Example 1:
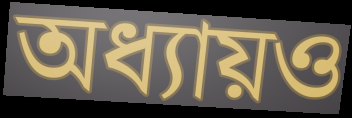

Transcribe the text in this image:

অধ্যায়ও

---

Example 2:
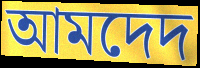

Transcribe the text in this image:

আমদেদ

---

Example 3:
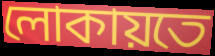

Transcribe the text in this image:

লোকায়তে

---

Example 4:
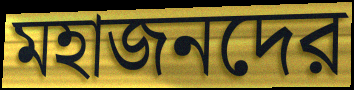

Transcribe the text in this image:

মহাজনদের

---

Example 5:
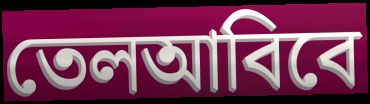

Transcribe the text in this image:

তেলআবিবে